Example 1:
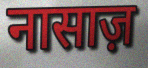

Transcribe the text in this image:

नासाज़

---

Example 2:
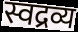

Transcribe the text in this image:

स्वद्रव्य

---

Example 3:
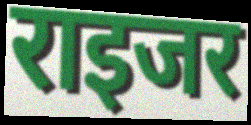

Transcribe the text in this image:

राइजर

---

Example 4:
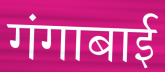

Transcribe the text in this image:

गंगाबाई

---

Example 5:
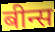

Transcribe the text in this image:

बीन्‍स